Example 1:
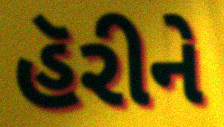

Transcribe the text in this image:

હૅરીને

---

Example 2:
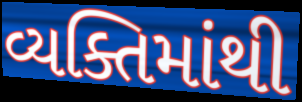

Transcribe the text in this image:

વ્યક્તિમાંથી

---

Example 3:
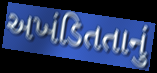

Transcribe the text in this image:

અખંડિતતાનું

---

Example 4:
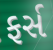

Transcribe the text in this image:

ફર્સ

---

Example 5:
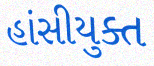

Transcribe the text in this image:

હાંસીયુક્ત